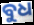
ବୁଧ